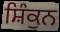
ਸ਼ਿੰਕੁਨ